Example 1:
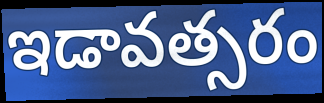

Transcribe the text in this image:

ఇడావత్సరం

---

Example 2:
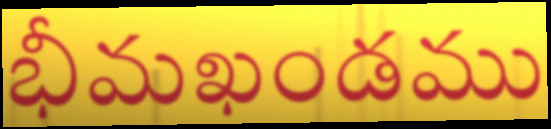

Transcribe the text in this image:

భీమఖండము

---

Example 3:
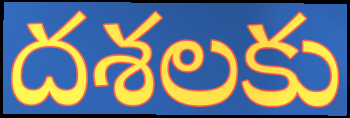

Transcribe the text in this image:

దశలకు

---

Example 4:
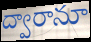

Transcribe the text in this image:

ద్వారానూ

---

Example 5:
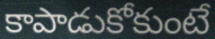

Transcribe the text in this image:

కాపాడుకోకుంటే